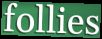
follies